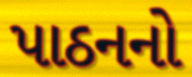
પાઠનનો